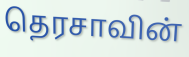
தெரசாவின்